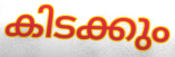
കിടക്കും